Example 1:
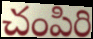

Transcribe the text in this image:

చంపిరి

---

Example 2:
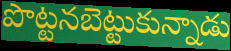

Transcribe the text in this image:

పొట్టనబెట్టుకున్నాడు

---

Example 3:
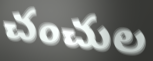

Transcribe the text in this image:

చంచుల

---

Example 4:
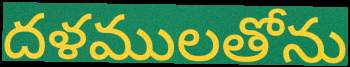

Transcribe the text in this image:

దళములతోను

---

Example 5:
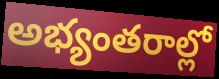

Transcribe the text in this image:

అభ్యంతరాల్లో